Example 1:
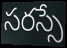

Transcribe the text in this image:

సరస్సే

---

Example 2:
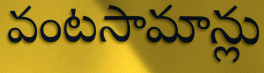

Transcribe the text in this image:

వంటసామాన్లు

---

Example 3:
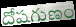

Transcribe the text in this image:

దోషగుణం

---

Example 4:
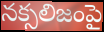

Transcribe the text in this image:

నక్సలిజంపై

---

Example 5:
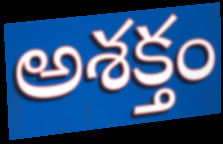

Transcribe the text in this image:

అశక్తం